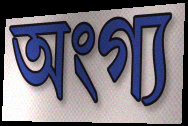
অংগ্য